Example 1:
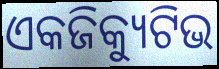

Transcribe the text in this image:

ଏକଜିକ୍ୟୁଟିଭ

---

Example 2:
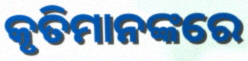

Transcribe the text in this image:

କୃତିମାନଙ୍କରେ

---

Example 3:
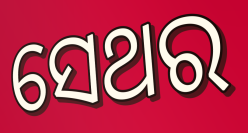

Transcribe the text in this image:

ସେଥର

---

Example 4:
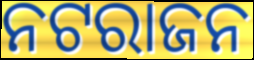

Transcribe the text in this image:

ନଟରାଜନ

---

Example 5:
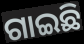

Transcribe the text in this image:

ଗାଇଛି